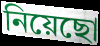
নিয়েছো